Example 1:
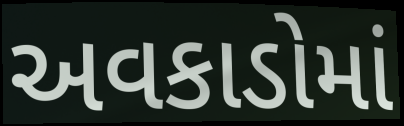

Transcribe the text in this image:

અવકાડોમાં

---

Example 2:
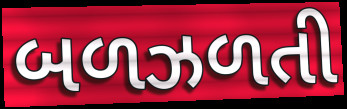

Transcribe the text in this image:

બળઝળતી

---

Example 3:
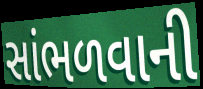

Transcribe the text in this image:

સાંભળવાની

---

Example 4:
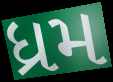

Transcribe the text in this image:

ધ્રમ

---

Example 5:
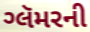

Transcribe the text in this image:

ગ્લૅમરની